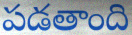
పడతాంది